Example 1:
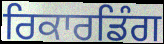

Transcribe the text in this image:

ਰਿਕਾਰਡਿੰਗ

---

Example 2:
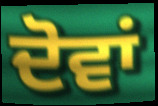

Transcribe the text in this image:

ਦੋਵਾਂ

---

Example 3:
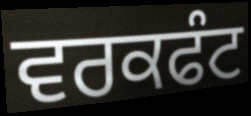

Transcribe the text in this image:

ਵਰਕਫੰਟ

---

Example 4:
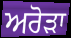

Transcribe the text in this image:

ਅਰੋੜਾ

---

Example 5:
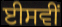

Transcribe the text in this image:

ਈਸਵੀਂ